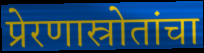
प्रेरणास्रोतांचा